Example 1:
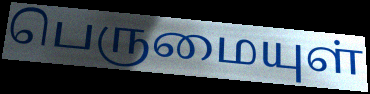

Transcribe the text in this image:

பெருமையுள்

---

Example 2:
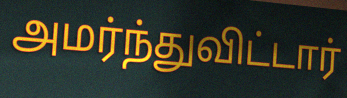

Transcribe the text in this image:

அமர்ந்துவிட்டார்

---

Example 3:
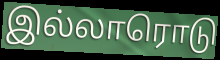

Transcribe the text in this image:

இல்லாரொடு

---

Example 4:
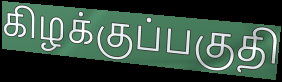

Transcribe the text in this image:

கிழக்குப்பகுதி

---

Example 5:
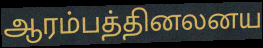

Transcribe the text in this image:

ஆரம்பத்தினலனய